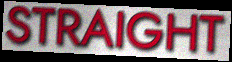
STRAIGHT